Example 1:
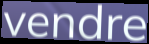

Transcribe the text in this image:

vendre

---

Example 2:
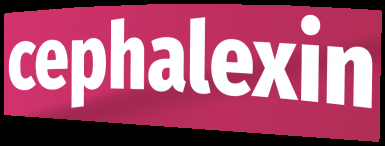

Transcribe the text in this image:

cephalexin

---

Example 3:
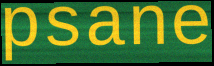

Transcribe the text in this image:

psane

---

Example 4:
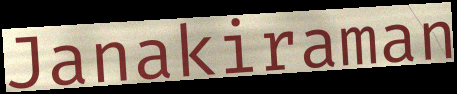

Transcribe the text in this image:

Janakiraman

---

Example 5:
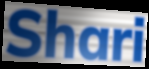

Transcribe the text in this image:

Shari